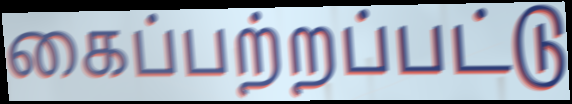
கைப்பற்றப்பட்டு